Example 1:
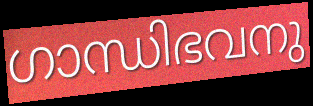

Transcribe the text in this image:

ഗാന്ധിഭവനു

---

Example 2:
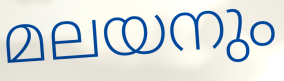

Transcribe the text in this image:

മലയനും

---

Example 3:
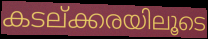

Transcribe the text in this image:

കടല്ക്കരയിലൂടെ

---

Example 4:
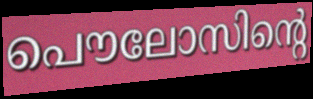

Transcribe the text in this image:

പൌലോസിന്റെ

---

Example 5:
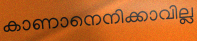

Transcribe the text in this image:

കാണാനെനിക്കാവില്ല